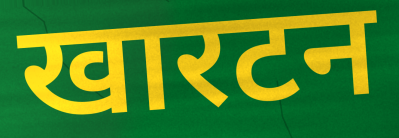
खारटन